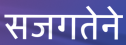
सजगतेने